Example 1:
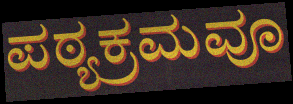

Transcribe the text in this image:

ಪಠ್ಯಕ್ರಮವೂ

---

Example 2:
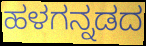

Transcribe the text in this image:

ಹಳಗನ್ನಡದ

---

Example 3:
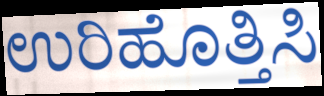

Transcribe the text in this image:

ಉರಿಹೊತ್ತಿಸಿ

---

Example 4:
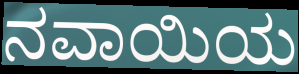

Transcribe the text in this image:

ನವಾಯಿಯ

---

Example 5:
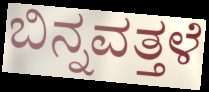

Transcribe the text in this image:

ಬಿನ್ನವತ್ತಳೆ